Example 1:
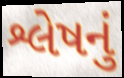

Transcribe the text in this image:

શ્લેષનું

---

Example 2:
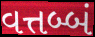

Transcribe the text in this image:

વત્તબ્બં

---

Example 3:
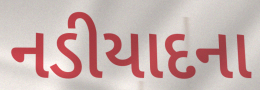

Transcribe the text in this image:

નડીયાદના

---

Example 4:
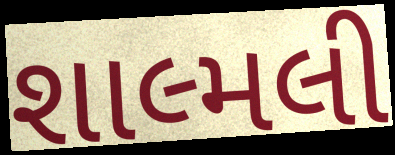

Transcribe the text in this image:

શાલ્મલી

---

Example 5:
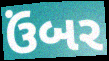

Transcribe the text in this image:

ઉંબર